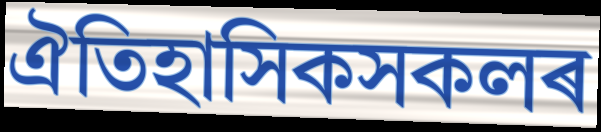
ঐতিহাসিকসকলৰ